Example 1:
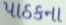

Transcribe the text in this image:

પાઠકના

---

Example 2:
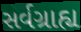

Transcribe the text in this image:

સર્વગ્રાહ્ય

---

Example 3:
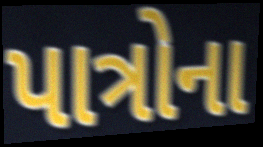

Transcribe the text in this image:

પાત્રોના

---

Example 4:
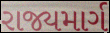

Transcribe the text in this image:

રાજ્યમાર્ગ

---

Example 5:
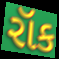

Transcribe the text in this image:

રૉક